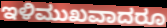
ಇಳಿಮುಖವಾದರೂ